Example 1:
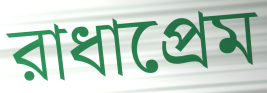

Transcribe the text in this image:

রাধাপ্রেম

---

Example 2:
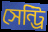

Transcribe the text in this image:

সেন্ট্রি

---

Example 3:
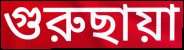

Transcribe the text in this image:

গুরুছায়া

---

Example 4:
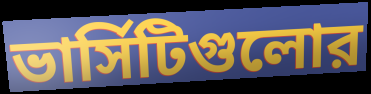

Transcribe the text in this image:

ভার্সিটিগুলোর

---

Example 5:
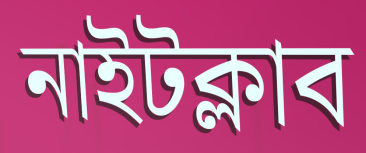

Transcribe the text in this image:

নাইটক্লাব